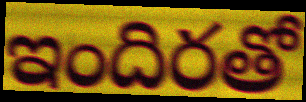
ఇందిరతో